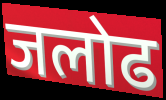
जलोढ